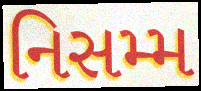
નિસમ્મ